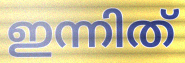
ഇന്നിത്